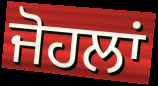
ਜੋਹਲਾਂ